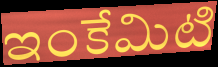
ఇంకేమిటి